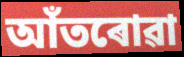
আঁতৰোৱা